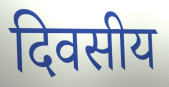
दिवसीय